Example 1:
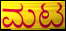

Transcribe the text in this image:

ಮಟ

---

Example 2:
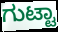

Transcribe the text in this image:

ಗುಟ್ಟಾ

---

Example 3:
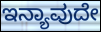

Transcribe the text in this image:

ಇನ್ಯಾವುದೇ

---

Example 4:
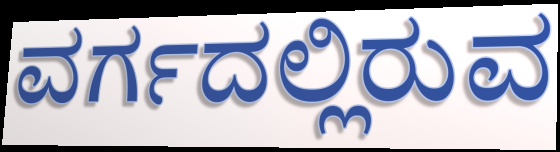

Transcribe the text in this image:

ವರ್ಗದಲ್ಲಿರುವ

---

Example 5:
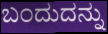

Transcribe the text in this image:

ಬಂದುದನ್ನು